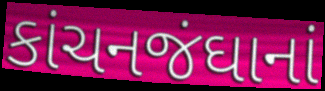
કાંચનજંઘાનાં